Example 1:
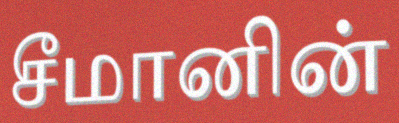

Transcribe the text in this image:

சீமானின்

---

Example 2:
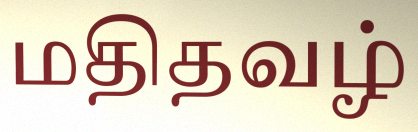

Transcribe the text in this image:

மதிதவழ்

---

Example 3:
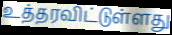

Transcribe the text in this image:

உத்தரவிட்டுள்ளது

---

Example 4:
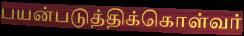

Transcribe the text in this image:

பயன்படுத்திக்கொள்வர்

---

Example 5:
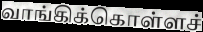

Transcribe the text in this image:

வாங்கிக்கொள்ளச்